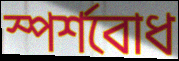
স্পর্শবোধ